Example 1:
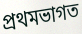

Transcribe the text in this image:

প্ৰথমভাগত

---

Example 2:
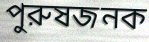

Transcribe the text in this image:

পুৰুষজনক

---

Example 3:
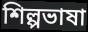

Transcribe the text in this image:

শিল্পভাষা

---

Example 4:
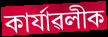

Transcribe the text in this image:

কাৰ্যাৱলীক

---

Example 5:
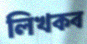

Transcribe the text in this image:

লিখকৰ